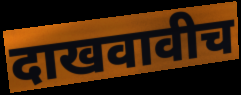
दाखवावीच